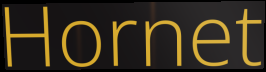
Hornet